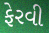
ફેરવી